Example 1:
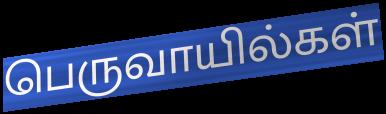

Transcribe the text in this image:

பெருவாயில்கள்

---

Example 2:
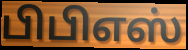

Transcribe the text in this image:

பிபிஎஸ்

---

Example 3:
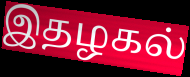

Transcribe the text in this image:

இதழகல்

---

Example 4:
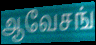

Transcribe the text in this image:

ஆவேசங்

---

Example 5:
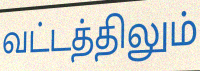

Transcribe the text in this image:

வட்டத்திலும்